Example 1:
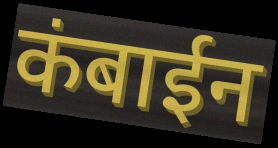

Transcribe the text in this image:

कंबाईन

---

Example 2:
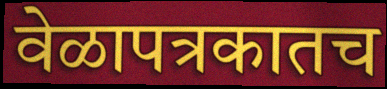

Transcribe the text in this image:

वेळापत्रकातच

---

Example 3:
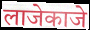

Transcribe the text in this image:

लाजेकाजे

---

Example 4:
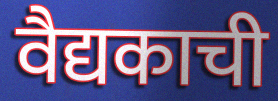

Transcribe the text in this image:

वैद्यकाची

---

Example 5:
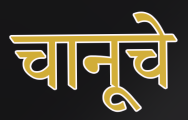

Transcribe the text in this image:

चानूचे